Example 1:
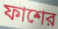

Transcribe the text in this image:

ফাশের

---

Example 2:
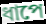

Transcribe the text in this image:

ধাপে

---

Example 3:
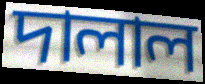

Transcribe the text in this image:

দালাল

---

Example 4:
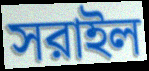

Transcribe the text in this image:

সরাইল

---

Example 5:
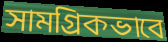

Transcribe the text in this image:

সামগ্রিকভাবে